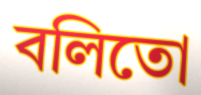
বলিতো